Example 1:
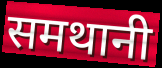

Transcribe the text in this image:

समथानी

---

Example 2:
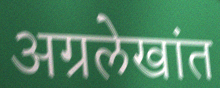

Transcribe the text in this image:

अग्रलेखांत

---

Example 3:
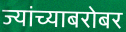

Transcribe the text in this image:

ज्यांच्याबरोबर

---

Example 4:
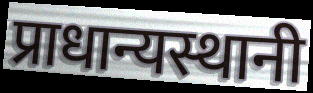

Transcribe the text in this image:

प्राधान्यस्थानी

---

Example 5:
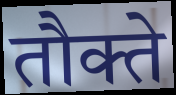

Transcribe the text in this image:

तौक्ते